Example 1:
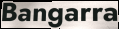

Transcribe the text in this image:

Bangarra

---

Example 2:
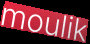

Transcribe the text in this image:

moulik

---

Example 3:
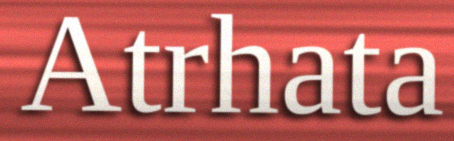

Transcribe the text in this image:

Atrhata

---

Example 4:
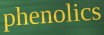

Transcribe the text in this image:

phenolics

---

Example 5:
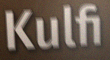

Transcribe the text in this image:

Kulfi